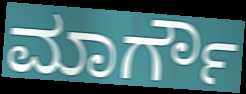
ಮಾರ್ಗೌ